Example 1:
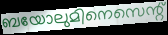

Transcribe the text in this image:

ബയോലുമിനെസെന്റ്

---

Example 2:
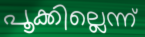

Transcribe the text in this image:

പൂക്കില്ലെന്ന്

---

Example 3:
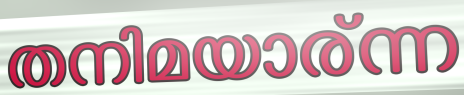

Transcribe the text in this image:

തനിമയാര്ന്ന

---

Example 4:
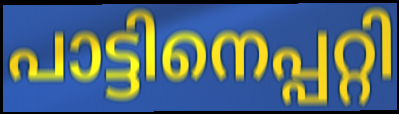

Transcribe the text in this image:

പാട്ടിനെപ്പറ്റി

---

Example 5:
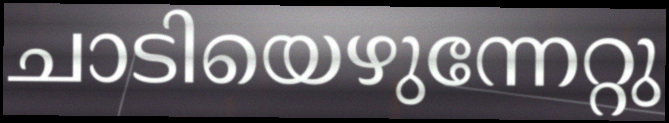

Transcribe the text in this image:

ചാടിയെഴുന്നേറ്റു